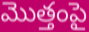
మొత్తంపై